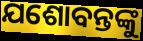
ଯଶୋବନ୍ତଙ୍କୁ